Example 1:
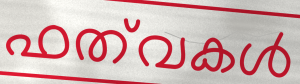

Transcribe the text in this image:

ഫത്‌വകൾ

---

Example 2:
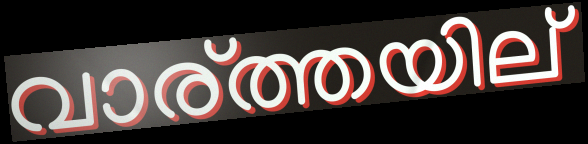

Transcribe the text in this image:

വാര്ത്തയില്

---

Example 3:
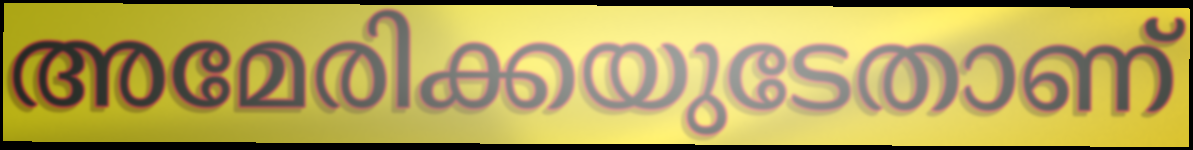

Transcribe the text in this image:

അമേരിക്കയുടേതാണ്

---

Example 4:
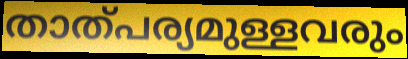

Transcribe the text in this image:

താത്പര്യമുള്ളവരും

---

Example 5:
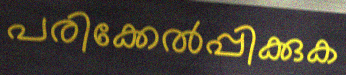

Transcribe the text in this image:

പരിക്കേൽപ്പിക്കുക